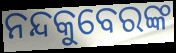
ନନ୍ଦକୁବେରଙ୍କ